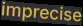
imprecise